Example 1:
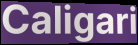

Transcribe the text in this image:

Caligari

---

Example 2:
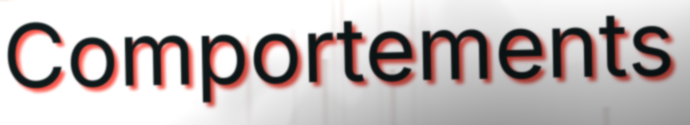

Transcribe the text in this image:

Comportements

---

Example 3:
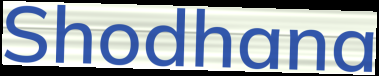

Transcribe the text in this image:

Shodhana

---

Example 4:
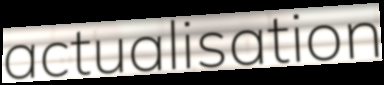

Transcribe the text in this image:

actualisation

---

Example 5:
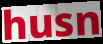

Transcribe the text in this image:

husn